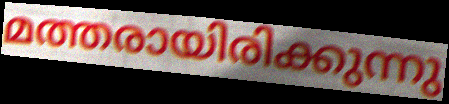
മത്തരായിരിക്കുന്നു